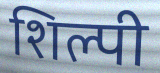
शिल्पी